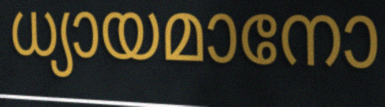
ധ്യായമാനോ